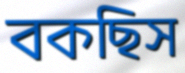
বকছিস